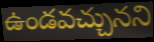
ఉండవచ్చునని